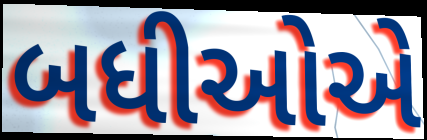
બધીઓએ